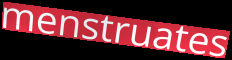
menstruates